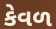
કેવળ